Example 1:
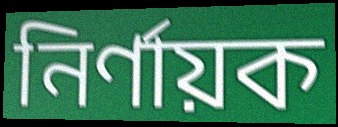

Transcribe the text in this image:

নির্ণায়ক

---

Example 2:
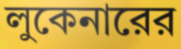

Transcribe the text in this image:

লুকেনারের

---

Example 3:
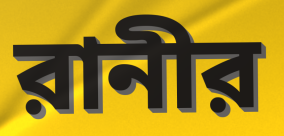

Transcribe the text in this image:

রানীর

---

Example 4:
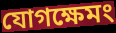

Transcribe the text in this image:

যোগক্ষেমং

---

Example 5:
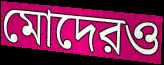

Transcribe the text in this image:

মোদেরও